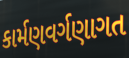
કાર્મણવર્ગણાગત